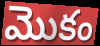
మొకం